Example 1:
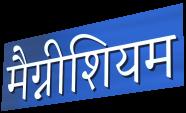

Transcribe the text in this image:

मैग्नीशियम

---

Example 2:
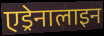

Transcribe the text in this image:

एड्रेनालाइन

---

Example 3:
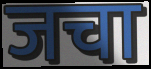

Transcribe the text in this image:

जचा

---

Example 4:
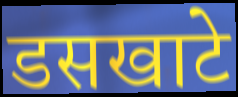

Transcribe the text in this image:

डसखाटे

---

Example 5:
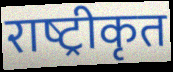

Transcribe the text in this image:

राष्ट्रीकृत